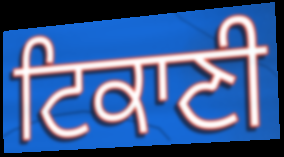
ਟਿਕਾਣੀ